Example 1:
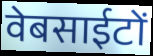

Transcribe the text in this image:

वेबसाईटों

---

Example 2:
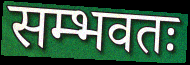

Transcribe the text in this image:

सम्भवतः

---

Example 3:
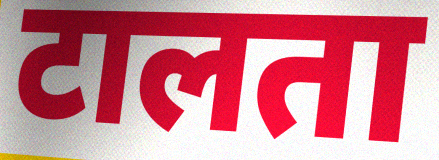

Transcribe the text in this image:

टालता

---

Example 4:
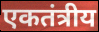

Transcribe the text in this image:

एकतंत्रीय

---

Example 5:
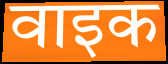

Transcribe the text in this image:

वाइक